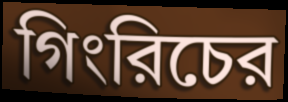
গিংরিচের